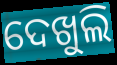
ଦେଖୁଲି